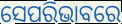
ସେପରିଭାବରେ